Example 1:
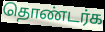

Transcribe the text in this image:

தொண்டர்க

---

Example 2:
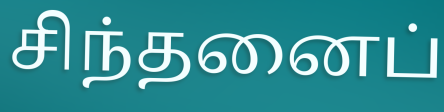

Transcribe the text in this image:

சிந்தனைப்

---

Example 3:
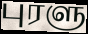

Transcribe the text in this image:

புரளு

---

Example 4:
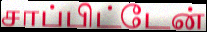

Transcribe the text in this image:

சாப்பிட்டேன்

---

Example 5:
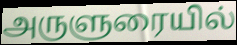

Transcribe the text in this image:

அருளுரையில்